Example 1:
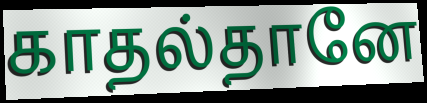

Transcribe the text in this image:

காதல்தானே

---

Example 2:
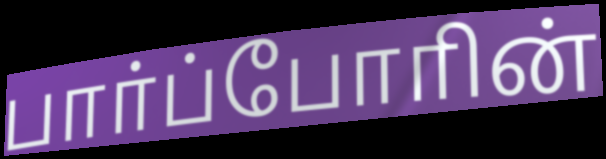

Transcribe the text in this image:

பார்ப்போரின்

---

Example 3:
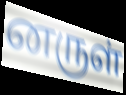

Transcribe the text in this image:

னருள்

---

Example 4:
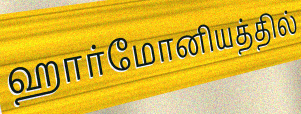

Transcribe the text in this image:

ஹார்மோனியத்தில்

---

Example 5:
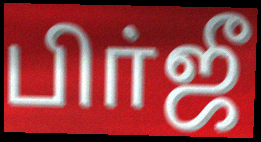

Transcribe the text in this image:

பிர்ஜீ